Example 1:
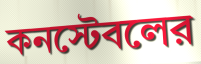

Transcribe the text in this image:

কনস্টেবলের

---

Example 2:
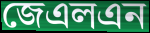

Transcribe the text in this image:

জেএলএন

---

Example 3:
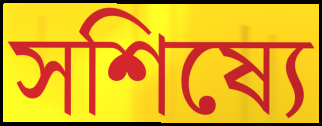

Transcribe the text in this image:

সশিষ্যে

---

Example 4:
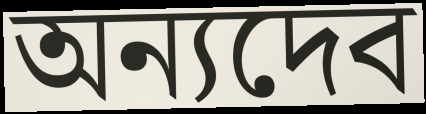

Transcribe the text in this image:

অন্যদেব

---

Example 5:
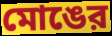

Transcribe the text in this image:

মোঙের